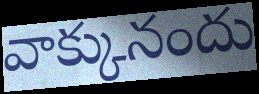
వాక్కునందు